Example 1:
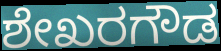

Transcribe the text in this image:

ಶೇಖರಗೌಡ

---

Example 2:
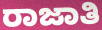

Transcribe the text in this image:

ರಾಜಾತಿ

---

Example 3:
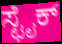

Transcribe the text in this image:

ಸ್ಟೈಕ್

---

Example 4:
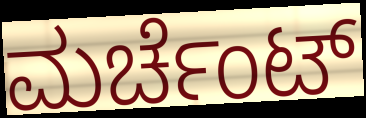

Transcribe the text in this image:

ಮರ್ಚೆಂಟ್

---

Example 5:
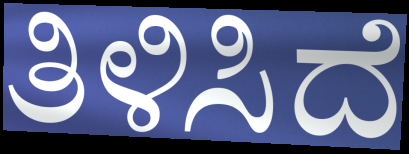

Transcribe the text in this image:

ತಿಳಿಸಿದೆ